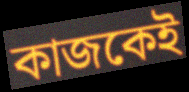
কাজকেই